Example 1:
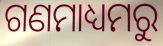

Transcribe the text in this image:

ଗଣମାଧ୍ୟମରୁ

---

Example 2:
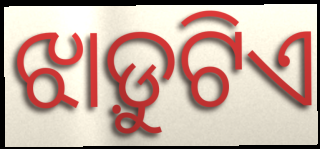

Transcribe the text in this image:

ଝାଡ଼ୁଟିଏ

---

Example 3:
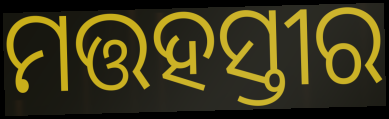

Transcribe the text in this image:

ମତ୍ତହସ୍ତୀର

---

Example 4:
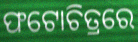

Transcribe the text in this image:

ଫଟୋଚିତ୍ରରେ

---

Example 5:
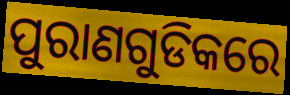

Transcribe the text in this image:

ପୁରାଣଗୁଡିକରେ